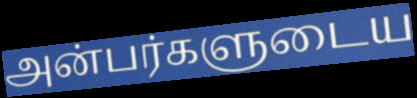
அன்பர்களுடைய